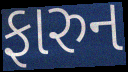
ફારુન